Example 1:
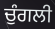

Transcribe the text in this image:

ਚੁੰਗਲੀ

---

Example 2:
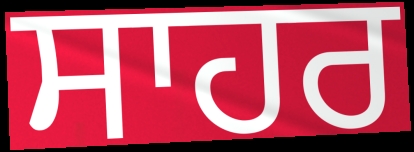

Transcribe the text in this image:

ਸਾਹਰ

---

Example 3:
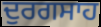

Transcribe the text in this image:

ਦੁਰਗਸਾਹ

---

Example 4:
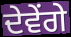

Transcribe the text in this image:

ਦੇਵੇਂਗੇ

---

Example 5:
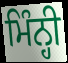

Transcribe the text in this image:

ਮਿੰਨ੍ਹੀ